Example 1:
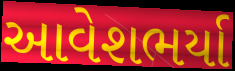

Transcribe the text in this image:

આવેશભર્યા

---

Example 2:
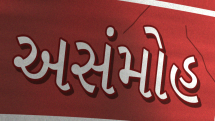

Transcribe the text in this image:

અસંમોહ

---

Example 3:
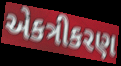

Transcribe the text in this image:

એકત્રીકરણ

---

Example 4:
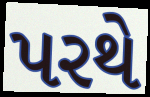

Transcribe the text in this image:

પરથે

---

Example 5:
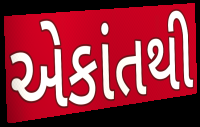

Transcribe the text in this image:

એકાંતથી